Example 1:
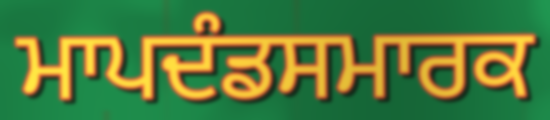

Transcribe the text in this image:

ਮਾਪਦੰਡਸਮਾਰਕ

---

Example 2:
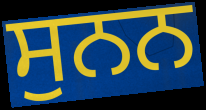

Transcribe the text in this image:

ਸੁਨਨ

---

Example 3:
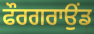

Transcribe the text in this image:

ਫੌਰਗਰਾਉਂਡ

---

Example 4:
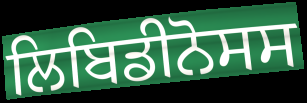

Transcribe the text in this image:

ਲਿਬਿਡੀਨੋਸਸ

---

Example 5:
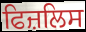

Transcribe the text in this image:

ਫਿਜ਼ਲਿਸ